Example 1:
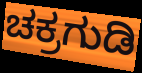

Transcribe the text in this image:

ಚಕ್ರಗುಡಿ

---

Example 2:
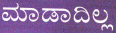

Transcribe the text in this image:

ಮಾಡಾದಿಲ್ಲ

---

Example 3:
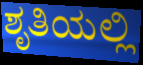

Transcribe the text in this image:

ಶೃತಿಯಲ್ಲಿ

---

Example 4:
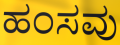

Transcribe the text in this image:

ಹಂಸವು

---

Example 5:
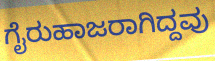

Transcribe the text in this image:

ಗೈರುಹಾಜರಾಗಿದ್ದವು